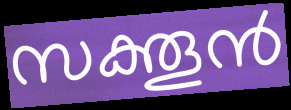
സക്തൂൻ